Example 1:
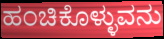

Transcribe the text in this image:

ಹಂಚಿಕೊಳ್ಳುವನು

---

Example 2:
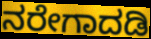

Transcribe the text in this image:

ನರೇಗಾದಡಿ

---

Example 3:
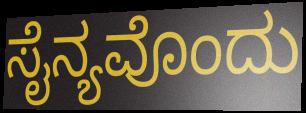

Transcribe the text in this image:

ಸೈನ್ಯವೊಂದು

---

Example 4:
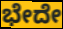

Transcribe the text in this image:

ಭೇದೇ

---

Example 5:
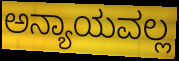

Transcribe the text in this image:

ಅನ್ಯಾಯವಲ್ಲ